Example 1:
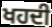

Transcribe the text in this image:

ਖਹਦੀ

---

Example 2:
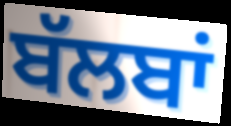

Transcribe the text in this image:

ਬੱਲਬਾਂ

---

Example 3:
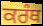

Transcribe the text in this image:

ਕਰੰਥ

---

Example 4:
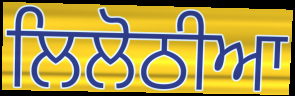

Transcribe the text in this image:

ਲਿਲੋਠੀਆ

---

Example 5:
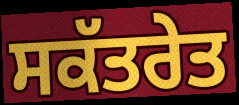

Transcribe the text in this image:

ਸਕੱਤਰੇਤ